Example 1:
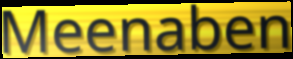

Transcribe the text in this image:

Meenaben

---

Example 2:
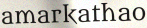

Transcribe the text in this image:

amarkathao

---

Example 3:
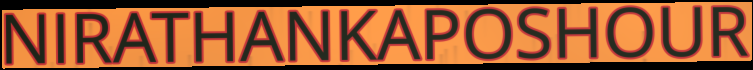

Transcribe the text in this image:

NIRATHANKAPOSHOUR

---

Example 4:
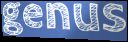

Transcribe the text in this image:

genus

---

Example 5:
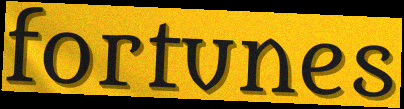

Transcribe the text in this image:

fortunes